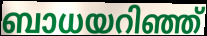
ബാധയറിഞ്ഞ്